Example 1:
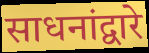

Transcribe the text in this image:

साधनांद्वारे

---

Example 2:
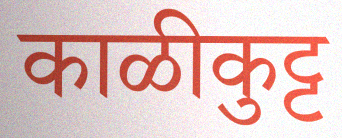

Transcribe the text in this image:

काळीकुट्ट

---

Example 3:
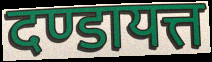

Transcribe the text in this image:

दण्डायत्त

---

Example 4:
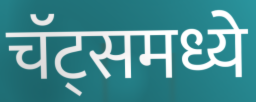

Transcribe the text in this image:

चॅट्समध्ये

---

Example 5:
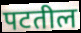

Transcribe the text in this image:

पटतील